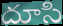
దూసి